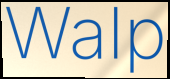
Walp